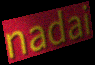
nadai